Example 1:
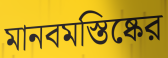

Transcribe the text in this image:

মানবমস্তিষ্কের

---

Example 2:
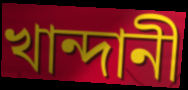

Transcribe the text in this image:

খান্দানী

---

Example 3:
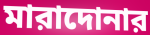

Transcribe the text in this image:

মারাদোনার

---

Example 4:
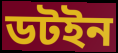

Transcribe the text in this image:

ডটইন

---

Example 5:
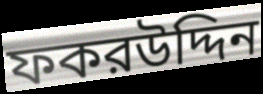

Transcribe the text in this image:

ফকরউদ্দিন